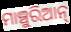
ମାଞ୍ଚୁରିଆନ୍